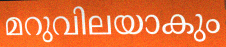
മറുവിലയാകും